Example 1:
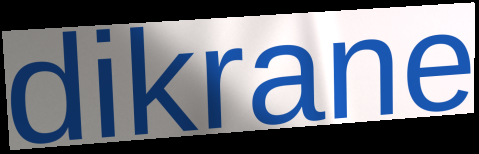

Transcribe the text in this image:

dikrane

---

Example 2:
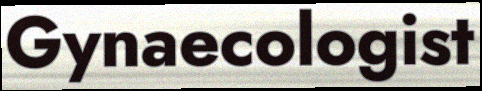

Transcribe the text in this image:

Gynaecologist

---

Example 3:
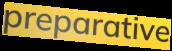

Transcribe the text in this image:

preparative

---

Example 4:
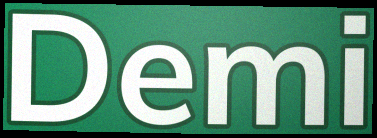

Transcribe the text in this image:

Demi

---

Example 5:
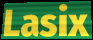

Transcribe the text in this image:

Lasix